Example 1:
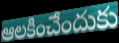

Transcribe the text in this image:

ఆలకించేందుకు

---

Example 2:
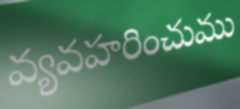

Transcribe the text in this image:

వ్యవహరించుము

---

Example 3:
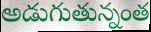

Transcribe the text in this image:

అడుగుతున్నంత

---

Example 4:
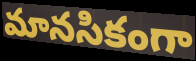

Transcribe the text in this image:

మానసికంగా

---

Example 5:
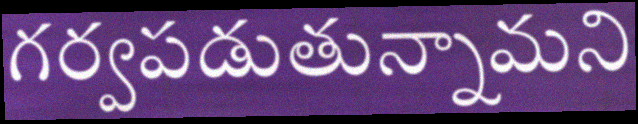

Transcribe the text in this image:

గర్వపడుతున్నామని